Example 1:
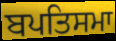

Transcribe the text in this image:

ਬਪਤਿਸਮਾ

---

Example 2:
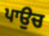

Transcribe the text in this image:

ਪਾਉਚ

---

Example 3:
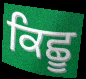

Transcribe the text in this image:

ਕਿਛੂ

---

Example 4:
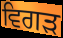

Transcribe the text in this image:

ਵਿਗੜ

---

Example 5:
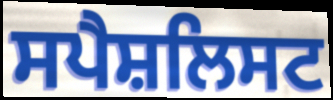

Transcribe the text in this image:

ਸਪੈਸ਼ਲਿਸਟ